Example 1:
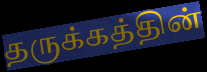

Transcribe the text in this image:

தருக்கத்தின்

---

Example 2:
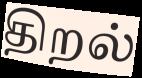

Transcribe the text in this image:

திறல்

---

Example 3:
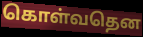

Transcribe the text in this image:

கொள்வதென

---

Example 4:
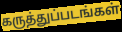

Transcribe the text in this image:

கருத்துப்படங்கள்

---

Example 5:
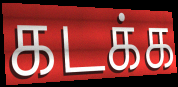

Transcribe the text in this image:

கடக்க